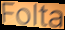
Folta